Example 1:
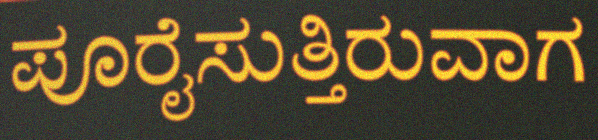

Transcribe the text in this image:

ಪೂರೈಸುತ್ತಿರುವಾಗ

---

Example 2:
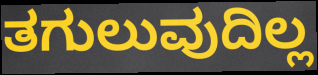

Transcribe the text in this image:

ತಗುಲುವುದಿಲ್ಲ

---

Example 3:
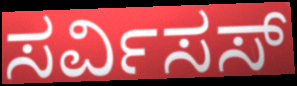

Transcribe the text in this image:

ಸರ್ವಿಸಸ್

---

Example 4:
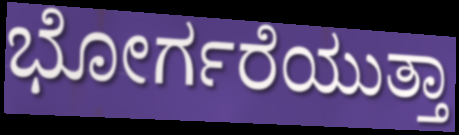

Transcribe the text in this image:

ಭೋರ್ಗರೆಯುತ್ತಾ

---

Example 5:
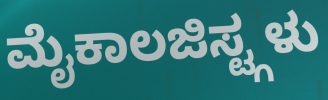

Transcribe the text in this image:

ಮೈಕಾಲಜಿಸ್ಟ್ಗಳು